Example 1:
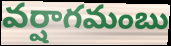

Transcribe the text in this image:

వర్షాగమంబు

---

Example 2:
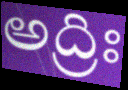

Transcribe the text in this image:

అద్రిః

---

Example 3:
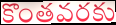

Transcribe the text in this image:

కొంతవరకు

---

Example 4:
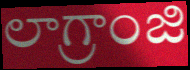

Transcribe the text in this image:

లాగ్రాంజి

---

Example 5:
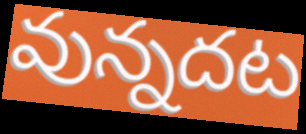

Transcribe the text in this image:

వున్నదట